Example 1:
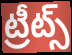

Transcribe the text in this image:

ట్రీట్స్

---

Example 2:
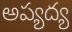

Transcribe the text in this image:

అప్యద్య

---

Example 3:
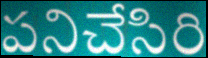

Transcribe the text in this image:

పనిచేసిరి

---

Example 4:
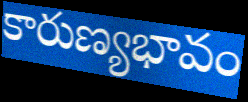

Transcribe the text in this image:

కారుణ్యభావం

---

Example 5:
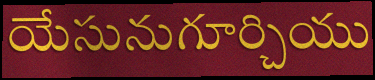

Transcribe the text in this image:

యేసునుగూర్చియు